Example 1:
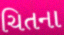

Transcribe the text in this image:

ચિતના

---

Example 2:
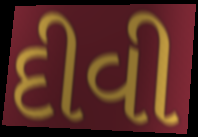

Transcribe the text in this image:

દીવી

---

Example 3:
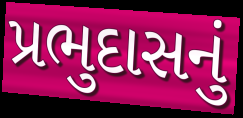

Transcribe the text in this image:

પ્રભુદાસનું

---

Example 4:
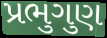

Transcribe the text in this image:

પ્રભુગુણ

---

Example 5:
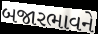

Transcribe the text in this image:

બજારભાવને